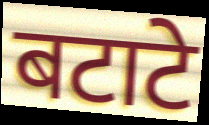
बटाटे